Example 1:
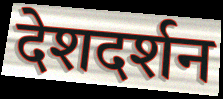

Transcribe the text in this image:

देशदर्शन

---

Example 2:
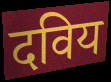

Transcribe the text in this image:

दविय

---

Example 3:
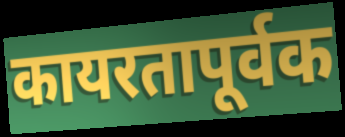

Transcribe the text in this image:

कायरतापूर्वक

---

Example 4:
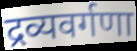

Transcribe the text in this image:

द्रव्यवर्गणा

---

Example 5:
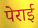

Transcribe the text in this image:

पेराई